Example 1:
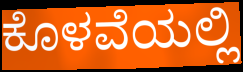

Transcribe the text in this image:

ಕೊಳವೆಯಲ್ಲಿ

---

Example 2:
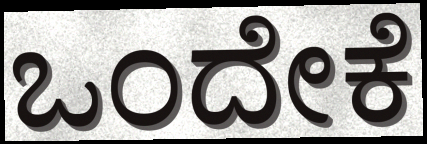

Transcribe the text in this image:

ಒಂದೇಕೆ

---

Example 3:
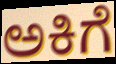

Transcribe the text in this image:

ಅಕಿಗೆ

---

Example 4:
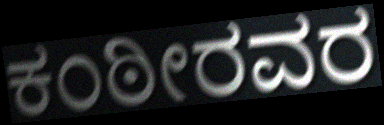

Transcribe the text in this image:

ಕಂಠೀರವರ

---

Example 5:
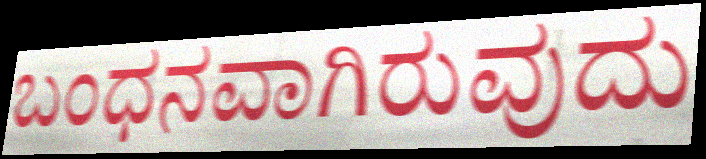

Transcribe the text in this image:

ಬಂಧನವಾಗಿರುವುದು